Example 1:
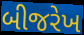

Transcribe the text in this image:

બીજરેખ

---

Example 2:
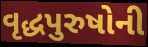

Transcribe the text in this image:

વૃદ્ધપુરુષોની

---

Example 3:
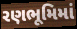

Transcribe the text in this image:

રણભૂમિમાં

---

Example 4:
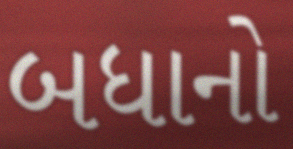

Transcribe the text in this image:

બધાનો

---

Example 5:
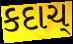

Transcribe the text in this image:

કદાચ્